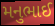
મનુભાઈ